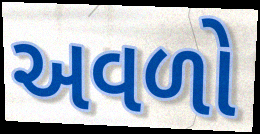
અવળો